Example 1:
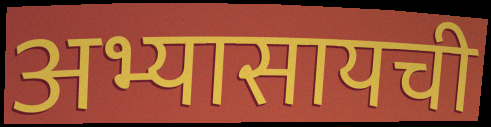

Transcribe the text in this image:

अभ्यासायची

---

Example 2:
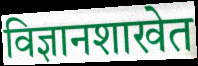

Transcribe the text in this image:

विज्ञानशाखेत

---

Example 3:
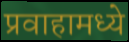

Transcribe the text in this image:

प्रवाहामध्ये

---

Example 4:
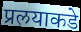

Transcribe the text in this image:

प्रलयाकडे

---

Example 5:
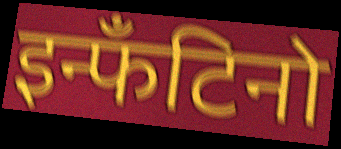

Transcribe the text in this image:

इन्फँटिनो